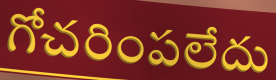
గోచరింపలేదు